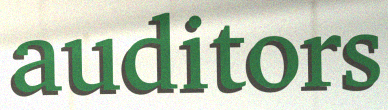
auditors